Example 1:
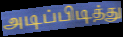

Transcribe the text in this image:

அடிப்பிடித்து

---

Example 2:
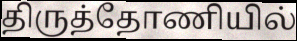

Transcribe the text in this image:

திருத்தோணியில்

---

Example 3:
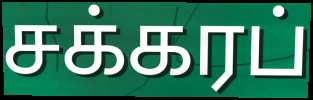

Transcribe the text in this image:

சக்கரப்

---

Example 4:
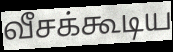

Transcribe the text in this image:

வீசக்கூடிய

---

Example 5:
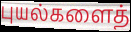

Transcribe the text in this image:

புயல்களைத்